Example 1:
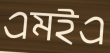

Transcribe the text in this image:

এমইএ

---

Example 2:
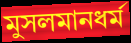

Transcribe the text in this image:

মুসলমানধর্ম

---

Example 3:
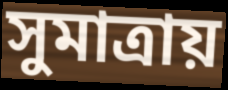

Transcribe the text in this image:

সুমাত্রায়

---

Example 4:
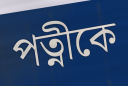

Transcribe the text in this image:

পত্নীকে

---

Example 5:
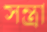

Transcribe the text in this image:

সন্ত্রা